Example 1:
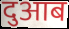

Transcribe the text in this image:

दुआब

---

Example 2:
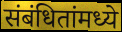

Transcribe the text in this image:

संबंधितांमध्ये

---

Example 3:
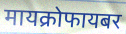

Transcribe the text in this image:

मायक्रोफायबर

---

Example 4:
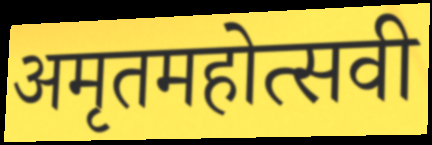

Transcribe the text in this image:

अमृतमहोत्सवी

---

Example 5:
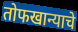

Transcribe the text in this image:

तोफखान्याचे